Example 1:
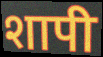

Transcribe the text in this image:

शापी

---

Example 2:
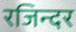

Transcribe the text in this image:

रजिन्दर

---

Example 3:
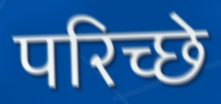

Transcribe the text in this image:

परिच्छे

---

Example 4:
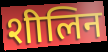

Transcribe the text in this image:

शीलिन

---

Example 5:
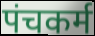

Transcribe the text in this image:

पंचकर्म